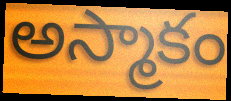
అస్మాకం